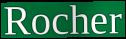
Rocher